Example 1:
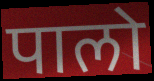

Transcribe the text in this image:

पालो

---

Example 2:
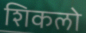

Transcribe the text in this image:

शिकलो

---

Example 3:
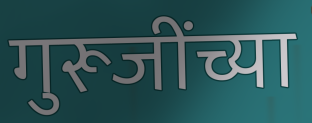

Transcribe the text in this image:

गुरूजींच्या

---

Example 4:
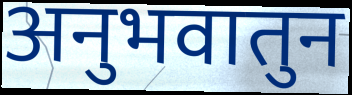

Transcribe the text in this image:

अनुभवातुन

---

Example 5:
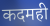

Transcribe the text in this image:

कदमही